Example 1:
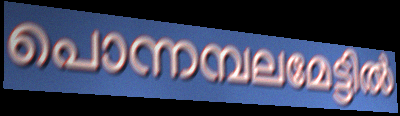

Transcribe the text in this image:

പൊന്നമ്പലമേട്ടിൽ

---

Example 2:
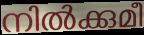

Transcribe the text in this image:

നിൽക്കുമീ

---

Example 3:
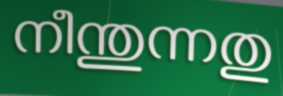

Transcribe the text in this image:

നീന്തുന്നതു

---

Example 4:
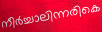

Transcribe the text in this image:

നീർച്ചാലിന്നരികെ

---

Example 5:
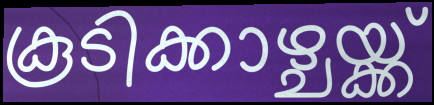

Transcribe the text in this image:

കൂടിക്കാഴ്ചയ്ക്ക്